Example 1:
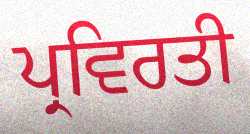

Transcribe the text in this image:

ਪ੍ਰਵਿਰਤੀ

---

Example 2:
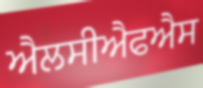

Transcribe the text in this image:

ਐਲਸੀਐਫਐਸ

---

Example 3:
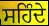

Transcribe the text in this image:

ਸਹਿੰਦੇ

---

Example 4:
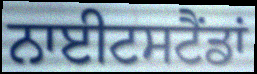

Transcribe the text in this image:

ਨਾਈਟਸਟੈਂਡਾਂ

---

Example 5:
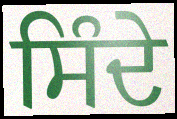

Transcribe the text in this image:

ਸਿੰਦੇ